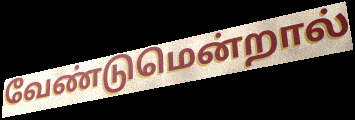
வேண்டுமென்றால்